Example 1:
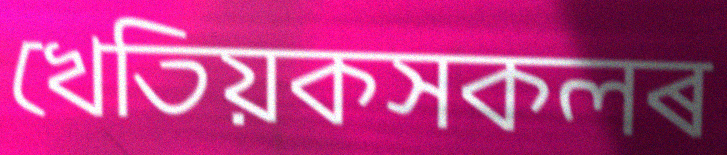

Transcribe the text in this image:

খেতিয়কসকলৰ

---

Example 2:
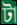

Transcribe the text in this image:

টা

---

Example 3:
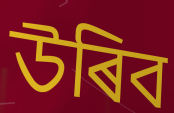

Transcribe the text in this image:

উৰিব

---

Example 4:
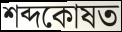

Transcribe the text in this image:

শব্দকোষত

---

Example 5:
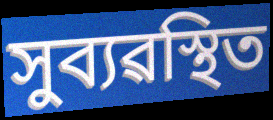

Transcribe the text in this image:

সুব্যৱস্থিত